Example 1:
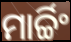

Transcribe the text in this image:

ମାର୍ଚ୍ଚିଂ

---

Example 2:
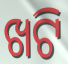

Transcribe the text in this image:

ଖଟି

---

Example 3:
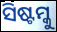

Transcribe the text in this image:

ସିଷ୍ଟମ୍କୁ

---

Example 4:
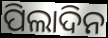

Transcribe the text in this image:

ପିଲାଦିନ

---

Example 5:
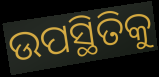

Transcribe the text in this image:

ଉପସ୍ଥିତିକୁ